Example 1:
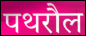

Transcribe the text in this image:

पथरौल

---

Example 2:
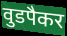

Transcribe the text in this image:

वुडपैकर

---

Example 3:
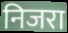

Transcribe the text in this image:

निजरा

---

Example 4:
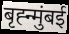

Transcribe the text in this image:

बृह्न्मुंबई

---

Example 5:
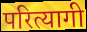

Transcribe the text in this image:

परित्यागी